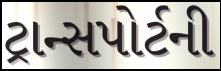
ટ્રાન્સપોર્ટની